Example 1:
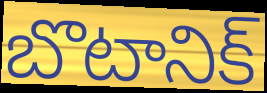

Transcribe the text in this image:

బొటానిక్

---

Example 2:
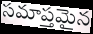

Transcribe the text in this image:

సమాప్తమైన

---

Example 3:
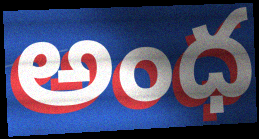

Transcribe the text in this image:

అంధ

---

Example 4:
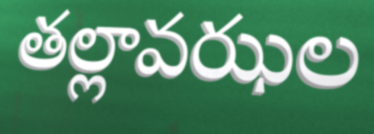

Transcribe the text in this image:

తల్లావఝల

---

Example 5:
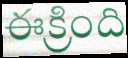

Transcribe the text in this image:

ఈక్రింది